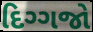
દિગ્ગજો